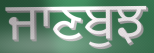
ਜਾਣਬੁਝ